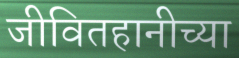
जीवितहानीच्या